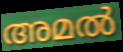
അമൽ